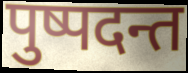
पुष्पदन्त